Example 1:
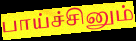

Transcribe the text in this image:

பாய்ச்சினும்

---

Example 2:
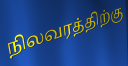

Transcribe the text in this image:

நிலவரத்திற்கு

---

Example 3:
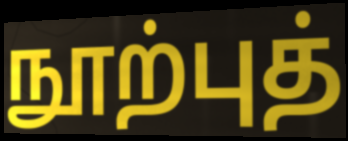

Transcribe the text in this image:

நூற்புத்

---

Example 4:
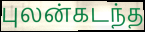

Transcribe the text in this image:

புலன்கடந்த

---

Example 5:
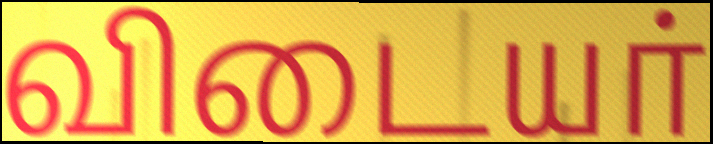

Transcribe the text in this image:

விடையர்